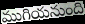
ముగియనుంది